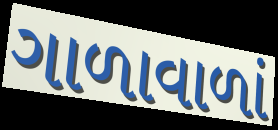
ગાળાવાળાં